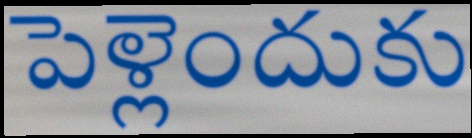
పెళ్లెందుకు